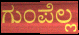
ಗುಂಪೆಲ್ಲ